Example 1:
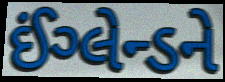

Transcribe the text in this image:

ઈંગ્લેન્ડને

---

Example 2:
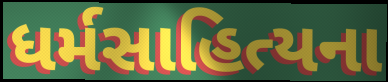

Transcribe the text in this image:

ધર્મસાહિત્યના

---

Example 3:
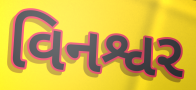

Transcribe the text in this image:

વિનશ્વર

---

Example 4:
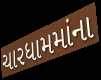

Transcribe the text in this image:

ચારધામમાંના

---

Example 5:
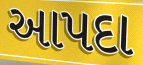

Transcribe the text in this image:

આપદા